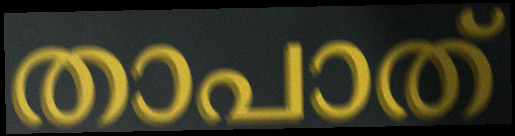
താപാത്